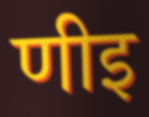
णीइ